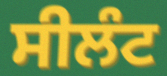
ਸੀਲੰਟ